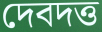
দেবদত্ত